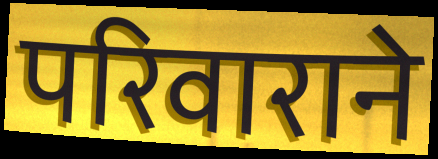
परिवाराने